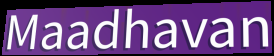
Maadhavan